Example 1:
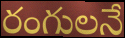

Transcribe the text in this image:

రంగులనే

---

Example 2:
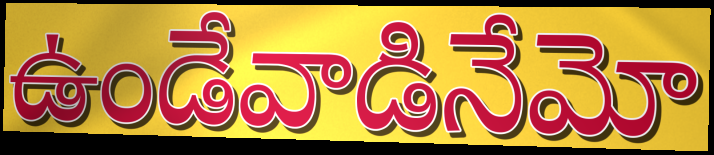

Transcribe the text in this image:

ఉండేవాడినేమో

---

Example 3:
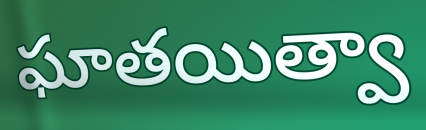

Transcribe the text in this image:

ఘాతయిత్వా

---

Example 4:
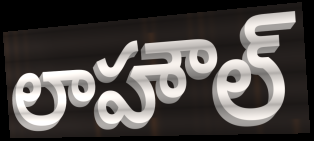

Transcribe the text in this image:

లాహౌల్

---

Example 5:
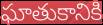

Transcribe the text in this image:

ఘాతుకానికి